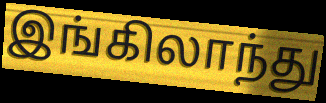
இங்கிலாந்து